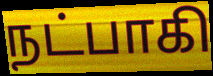
நட்பாகி